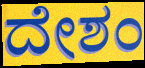
ದೇಶಂ